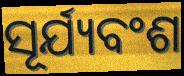
ସୂର୍ଯ୍ୟବଂଶ